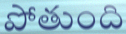
పోతుంది